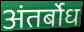
अंतर्बोध